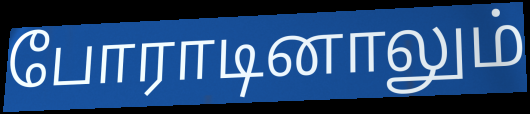
போராடினாலும்